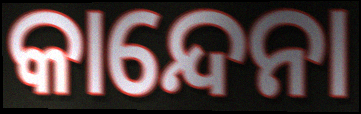
କାନ୍ଦେନା